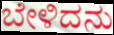
ಬೇಳಿದನು